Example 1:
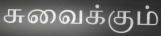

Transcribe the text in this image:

சுவைக்கும்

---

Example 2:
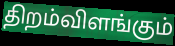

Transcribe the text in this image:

திறம்விளங்கும்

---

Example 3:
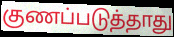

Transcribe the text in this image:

குணப்படுத்தாது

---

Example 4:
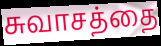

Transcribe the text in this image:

சுவாசத்தை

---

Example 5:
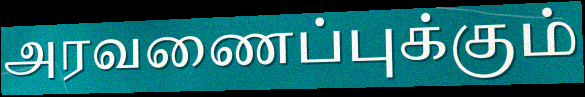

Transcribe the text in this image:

அரவணைப்புக்கும்